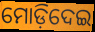
ମୋଡ଼ିଦେଇ